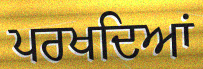
ਪਰਖਦਿਆਂ